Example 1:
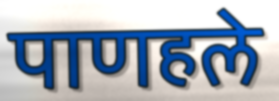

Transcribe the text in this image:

पाणहले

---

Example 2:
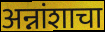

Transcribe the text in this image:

अन्नांशाचा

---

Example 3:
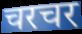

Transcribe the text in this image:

चरचर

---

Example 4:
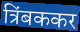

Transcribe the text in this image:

त्रिंबककर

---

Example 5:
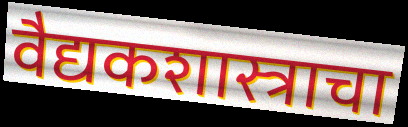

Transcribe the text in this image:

वैद्यकशास्त्राचा